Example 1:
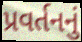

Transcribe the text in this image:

પ્રવર્તનનું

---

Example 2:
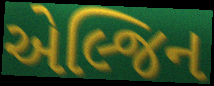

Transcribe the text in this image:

એલ્જિન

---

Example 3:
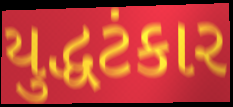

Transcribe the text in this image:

યુદ્ધટંકાર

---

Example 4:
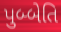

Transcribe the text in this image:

પુબ્બેતિ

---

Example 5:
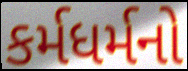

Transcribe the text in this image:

કર્મધર્મનો